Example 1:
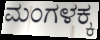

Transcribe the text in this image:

ಮಂಗಳಕ್ಕ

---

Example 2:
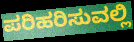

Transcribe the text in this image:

ಪರಿಹರಿಸುವಲ್ಲಿ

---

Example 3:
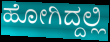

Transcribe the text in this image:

ಹೋಗಿದ್ದಲ್ಲಿ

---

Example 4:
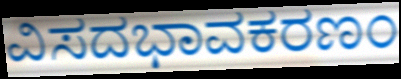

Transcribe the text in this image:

ವಿಸದಭಾವಕರಣಂ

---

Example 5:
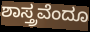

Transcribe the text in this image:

ಶಾಸ್ತ್ರವೆಂದೂ